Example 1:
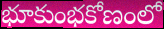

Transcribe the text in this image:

భూకుంభకోణంలో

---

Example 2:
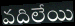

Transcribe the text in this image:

వదిలేయి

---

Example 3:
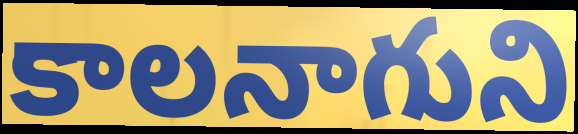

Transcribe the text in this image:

కాలనాగుని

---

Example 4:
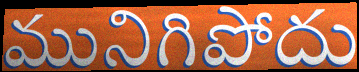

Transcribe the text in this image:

మునిగిపోదు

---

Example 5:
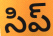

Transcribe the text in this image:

సిప్